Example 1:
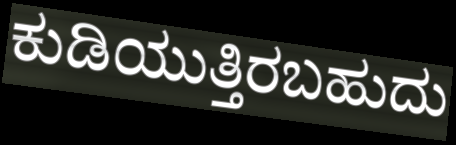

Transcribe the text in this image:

ಕುಡಿಯುತ್ತಿರಬಹುದು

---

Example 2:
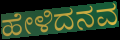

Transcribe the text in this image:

ಹೇಳಿದನವ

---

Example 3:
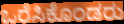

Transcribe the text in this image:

ಒರೆಸಿಕೊಂಡರು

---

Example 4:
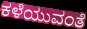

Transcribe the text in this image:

ಕಳೆಯುವಂತೆ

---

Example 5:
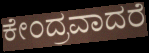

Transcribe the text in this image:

ಕೇಂದ್ರವಾದರೆ